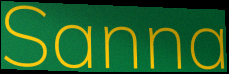
Sanna